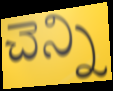
చెన్ని